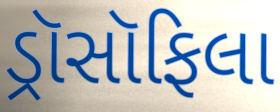
ડ્રૉસૉફિલા